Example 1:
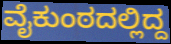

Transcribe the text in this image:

ವೈಕುಂಠದಲ್ಲಿದ್ದ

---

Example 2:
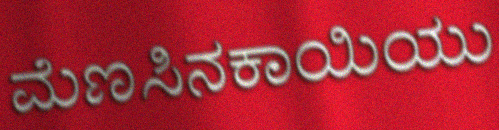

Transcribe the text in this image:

ಮೆಣಸಿನಕಾಯಿಯು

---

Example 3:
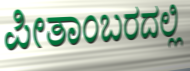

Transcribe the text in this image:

ಪೀತಾಂಬರದಲ್ಲಿ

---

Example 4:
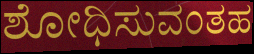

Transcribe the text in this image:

ಶೋಧಿಸುವಂತಹ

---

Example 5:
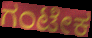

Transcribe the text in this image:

ಗಂಟೇಕ